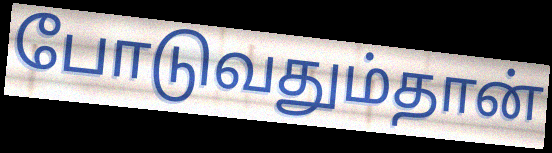
போடுவதும்தான்